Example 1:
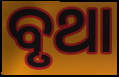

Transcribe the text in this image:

ବୃଥା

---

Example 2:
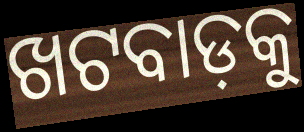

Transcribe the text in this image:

ଖଟବାଡ଼କୁ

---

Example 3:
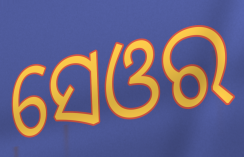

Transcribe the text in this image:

ସେଓର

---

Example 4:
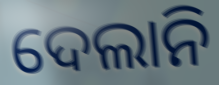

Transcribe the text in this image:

ଦେଲାନି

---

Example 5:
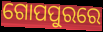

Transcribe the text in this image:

ଗୋପପୁରରେ